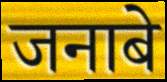
जनाबे